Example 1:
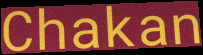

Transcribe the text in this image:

Chakan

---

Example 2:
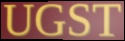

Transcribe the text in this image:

UGST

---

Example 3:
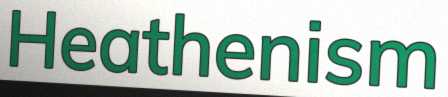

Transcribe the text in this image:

Heathenism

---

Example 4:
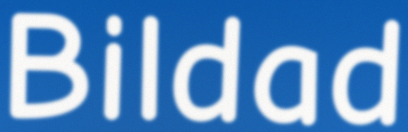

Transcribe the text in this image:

Bildad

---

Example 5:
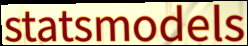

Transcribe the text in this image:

statsmodels